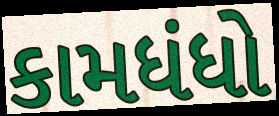
કામધંધો